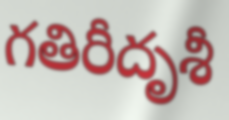
గతిరీదృశీ